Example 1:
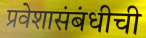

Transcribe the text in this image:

प्रवेशासंबंधीची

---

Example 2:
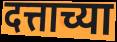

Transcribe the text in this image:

दत्ताच्या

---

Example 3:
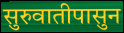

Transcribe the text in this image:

सुरुवातीपासुन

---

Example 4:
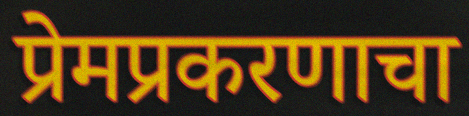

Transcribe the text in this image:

प्रेमप्रकरणाचा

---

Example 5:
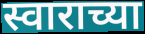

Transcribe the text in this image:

स्वाराच्या